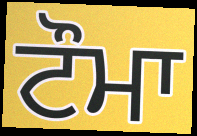
ਟੌਮਾ